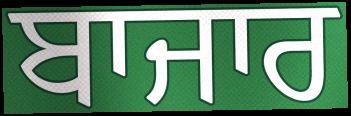
ਬਾਜਾਰ